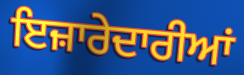
ਇਜ਼ਾਰੇਦਾਰੀਆਂ